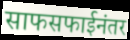
साफसफाईनंतर